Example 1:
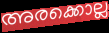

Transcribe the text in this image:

അരക്കൊല്ല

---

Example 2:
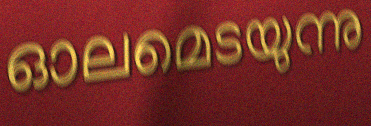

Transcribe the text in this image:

ഓലമെടയുന്നു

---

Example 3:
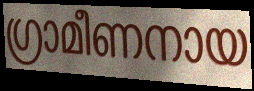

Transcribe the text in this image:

ഗ്രാമീണനായ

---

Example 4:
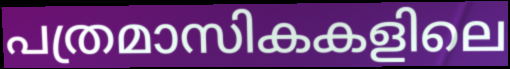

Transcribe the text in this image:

പത്രമാസികകളിലെ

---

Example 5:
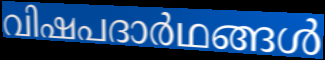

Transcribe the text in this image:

വിഷപദാർഥങ്ങൾ